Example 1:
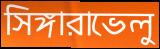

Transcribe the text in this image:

সিঙ্গারাভেলু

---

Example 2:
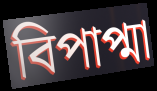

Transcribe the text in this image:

বিপাপ্মা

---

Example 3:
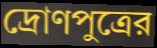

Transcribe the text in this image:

দ্রোণপুত্রের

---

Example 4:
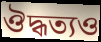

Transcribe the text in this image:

ঔদ্ধত্যও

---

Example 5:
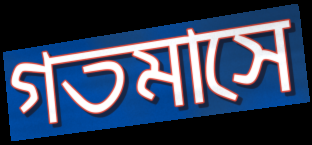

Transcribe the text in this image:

গতমাসে